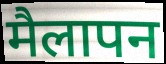
मैलापन